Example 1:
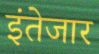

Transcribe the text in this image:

इंतेजार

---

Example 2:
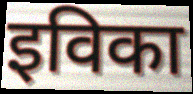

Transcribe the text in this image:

इविका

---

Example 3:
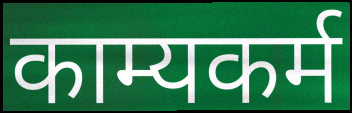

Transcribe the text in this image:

काम्यकर्म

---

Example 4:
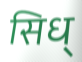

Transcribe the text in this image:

सिध्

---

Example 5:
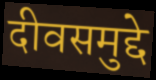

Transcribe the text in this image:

दीवसमुद्दे